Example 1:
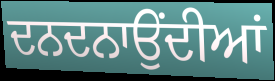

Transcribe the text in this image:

ਦਨਦਨਾਉਂਦੀਆਂ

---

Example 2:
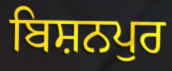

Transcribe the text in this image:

ਬਿਸ਼ਨਪੁਰ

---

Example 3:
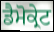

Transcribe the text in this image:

ਡੈਮੋਕ੍ਰੇਟ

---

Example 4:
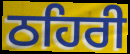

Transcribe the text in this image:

ਠਹਿਰੀ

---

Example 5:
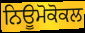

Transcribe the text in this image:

ਨਿਊਮੋਕੋਕਲ